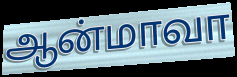
ஆன்மாவா